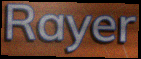
Rayer